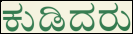
ಕುಡಿದರು